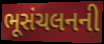
ભૂસંચલનની